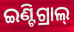
ଇଣ୍ଟିଗ୍ରାଲ୍